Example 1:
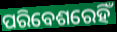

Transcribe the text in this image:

ପରିବେଶରେହିଁ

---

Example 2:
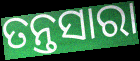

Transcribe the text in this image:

ତନ୍ତସାରା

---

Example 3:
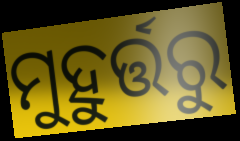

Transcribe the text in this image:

ମୁହୁର୍ତ୍ତରୁ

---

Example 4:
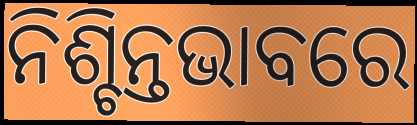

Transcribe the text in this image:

ନିଶ୍ଚିନ୍ତଭାବରେ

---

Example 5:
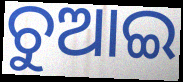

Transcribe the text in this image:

ଚୁଆଇ